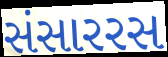
સંસારરસ